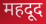
महदूद